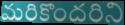
మరికొందరిని